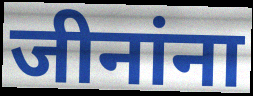
जीनांना